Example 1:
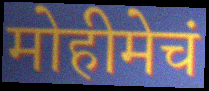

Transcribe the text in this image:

मोहीमेचं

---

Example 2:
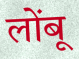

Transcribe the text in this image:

लोंबू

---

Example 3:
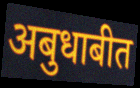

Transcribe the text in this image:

अबुधाबीत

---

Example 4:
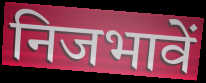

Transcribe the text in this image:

निजभावें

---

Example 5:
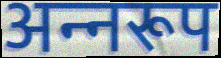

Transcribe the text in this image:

अन्नरूप